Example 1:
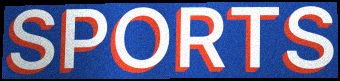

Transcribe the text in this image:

SPORTS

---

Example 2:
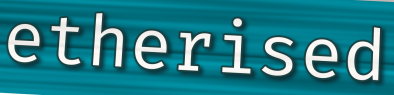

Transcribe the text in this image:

etherised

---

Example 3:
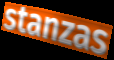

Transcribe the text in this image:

stanzas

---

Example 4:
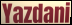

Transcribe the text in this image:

Yazdani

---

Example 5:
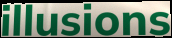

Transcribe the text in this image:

illusions